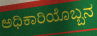
ಅಧಿಕಾರಿಯೊಬ್ಬನ